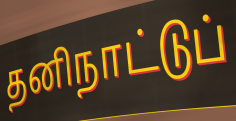
தனிநாட்டுப்